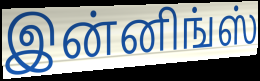
இன்னிங்ஸ்